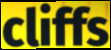
cliffs